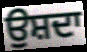
ਉਸ਼ਦਾ